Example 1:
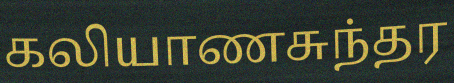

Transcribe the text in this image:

கலியாணசுந்தர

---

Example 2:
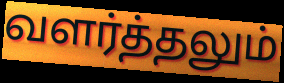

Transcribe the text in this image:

வளர்த்தலும்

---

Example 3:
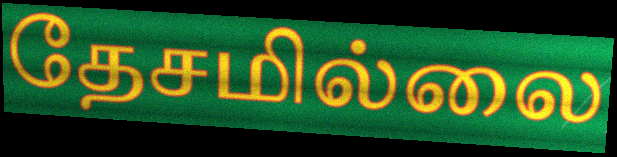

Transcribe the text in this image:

தேசமில்லை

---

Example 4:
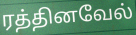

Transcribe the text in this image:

ரத்தினவேல்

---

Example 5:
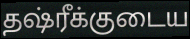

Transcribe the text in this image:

தஷ்ரீக்குடைய